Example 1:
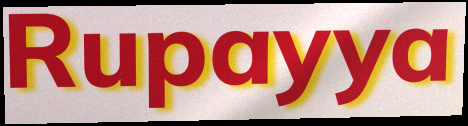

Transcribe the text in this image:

Rupayya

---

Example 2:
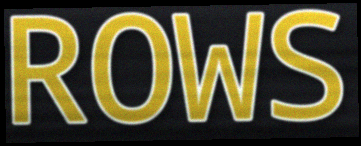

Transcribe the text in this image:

ROWS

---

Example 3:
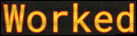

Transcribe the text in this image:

Worked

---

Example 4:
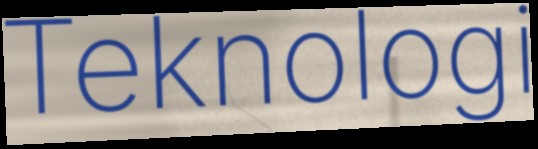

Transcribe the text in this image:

Teknologi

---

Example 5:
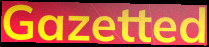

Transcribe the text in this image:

Gazetted